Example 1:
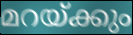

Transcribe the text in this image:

മറയ്ക്കും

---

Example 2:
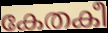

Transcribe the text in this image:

കേതകീ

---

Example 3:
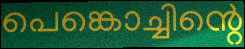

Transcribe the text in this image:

പെങ്കൊച്ചിന്റെ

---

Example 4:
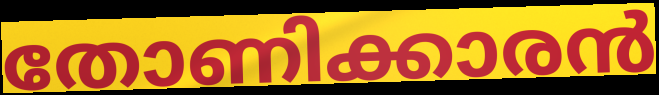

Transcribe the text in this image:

തോണിക്കാരൻ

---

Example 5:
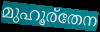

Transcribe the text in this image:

മുഹൂര്തേന